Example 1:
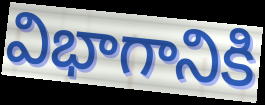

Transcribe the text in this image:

విభాగానికి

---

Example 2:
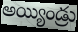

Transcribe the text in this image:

అయ్యిండ్రు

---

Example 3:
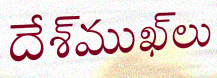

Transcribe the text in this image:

దేశ్‌ముఖ్‌లు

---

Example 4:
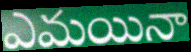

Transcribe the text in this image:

ఎమయినా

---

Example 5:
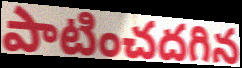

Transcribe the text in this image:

పాటించదగిన